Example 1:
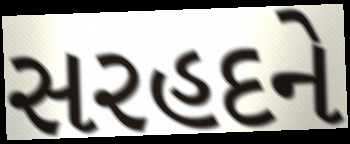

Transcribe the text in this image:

સરહદને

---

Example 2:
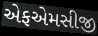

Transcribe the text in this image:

એફએમસીજી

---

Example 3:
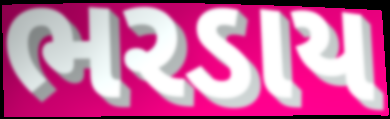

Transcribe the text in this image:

ભરડાય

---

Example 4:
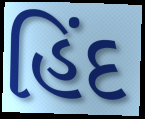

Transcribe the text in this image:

હિંદ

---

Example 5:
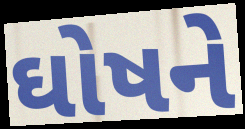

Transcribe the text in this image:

ઘોષને